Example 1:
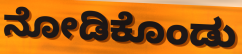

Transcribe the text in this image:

ನೋಡಿಕೊಂಡು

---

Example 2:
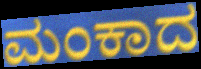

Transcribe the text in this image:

ಮಂಕಾದ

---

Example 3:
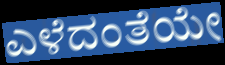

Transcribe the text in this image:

ಎಳೆದಂತೆಯೇ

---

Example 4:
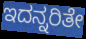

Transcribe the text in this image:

ಇದನ್ನರಿತೇ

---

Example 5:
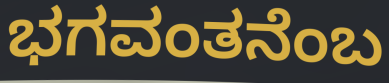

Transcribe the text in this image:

ಭಗವಂತನೆಂಬ